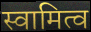
स्वामित्व